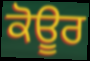
ਕੋਊਰ